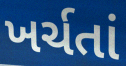
ખર્ચતાં